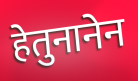
हेतुनानेन